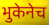
भुकेनेच